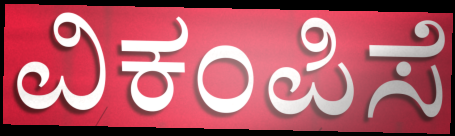
ವಿಕಂಪಿಸೆ